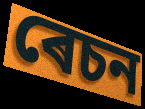
ৰেচন